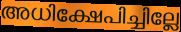
അധിക്ഷേപിച്ചില്ലേ